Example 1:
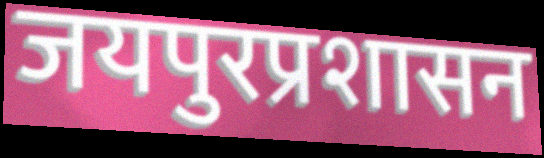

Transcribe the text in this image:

जयपुरप्रशासन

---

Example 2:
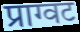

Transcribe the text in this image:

प्राग्वट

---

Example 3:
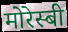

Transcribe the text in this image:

मोरेस्बी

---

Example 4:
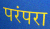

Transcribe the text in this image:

परंपरा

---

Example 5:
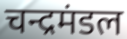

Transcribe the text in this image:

चन्द्रमंडल